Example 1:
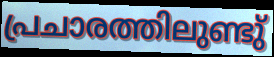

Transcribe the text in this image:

പ്രചാരത്തിലുണ്ടു്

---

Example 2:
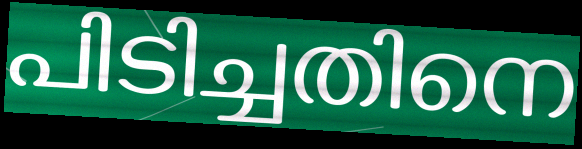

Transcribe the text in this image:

പിടിച്ചതിനെ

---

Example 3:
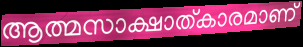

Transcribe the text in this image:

ആത്മസാക്ഷാത്കാരമാണ്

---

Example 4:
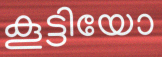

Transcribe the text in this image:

കൂട്ടിയോ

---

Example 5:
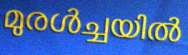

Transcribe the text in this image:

മുരൾച്ചയിൽ